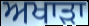
ਅਖਾੜਾ